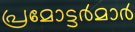
പ്രമോട്ടർമാർ